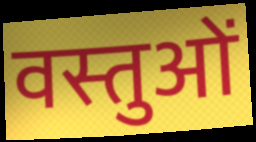
वस्तुओं